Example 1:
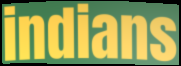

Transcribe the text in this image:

indians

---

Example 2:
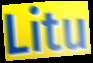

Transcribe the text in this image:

Litu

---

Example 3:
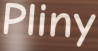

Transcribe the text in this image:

Pliny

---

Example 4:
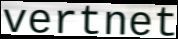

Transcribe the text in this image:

vertnet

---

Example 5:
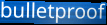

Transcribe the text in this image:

bulletproof